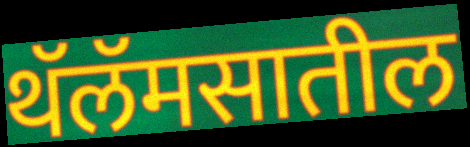
थॅलॅमसातील